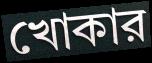
খোকার